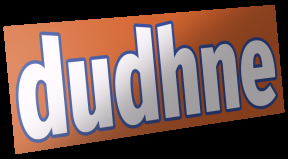
dudhne